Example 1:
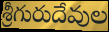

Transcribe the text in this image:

శ్రీగురుదేవుల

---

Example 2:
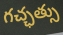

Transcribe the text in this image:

గచ్ఛత్సు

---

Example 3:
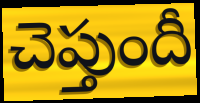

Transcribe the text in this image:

చెప్తుందీ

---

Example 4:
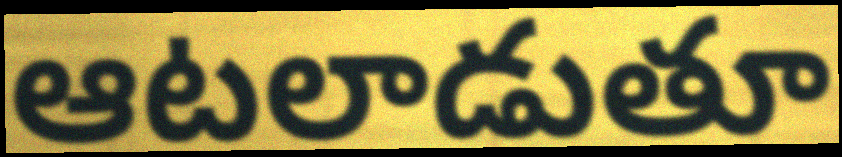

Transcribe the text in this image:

ఆటలాడుతూ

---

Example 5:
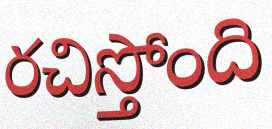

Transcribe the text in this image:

రచిస్తోంది